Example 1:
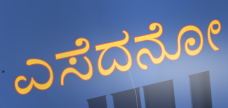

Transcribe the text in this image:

ಎಸೆದನೋ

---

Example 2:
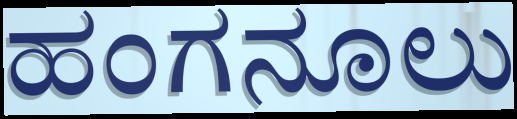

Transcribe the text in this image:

ಹಂಗನೂಲು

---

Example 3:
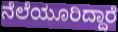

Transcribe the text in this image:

ನೆಲೆಯೂರಿದ್ದಾರೆ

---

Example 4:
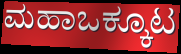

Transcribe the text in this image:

ಮಹಾಒಕ್ಕೂಟ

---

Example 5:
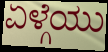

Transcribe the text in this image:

ಏಳ್ಗೆಯು